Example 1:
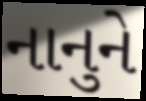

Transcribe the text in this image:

નાનુને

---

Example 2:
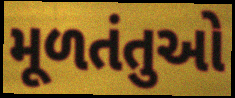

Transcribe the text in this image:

મૂળતંતુઓ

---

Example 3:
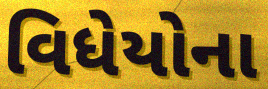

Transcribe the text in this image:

વિધેયોના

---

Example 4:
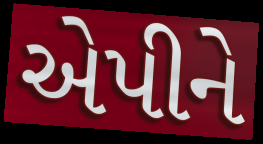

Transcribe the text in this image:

એપીને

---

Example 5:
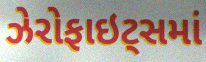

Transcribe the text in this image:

ઝેરોફાઇટ્સમાં